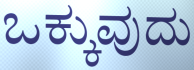
ಒಕ್ಕುವುದು